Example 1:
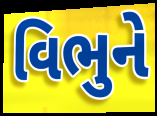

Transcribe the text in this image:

વિભુને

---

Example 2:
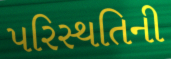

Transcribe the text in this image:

પરિસ્થતિની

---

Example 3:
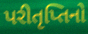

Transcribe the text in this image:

પરીતૃપ્તિનો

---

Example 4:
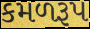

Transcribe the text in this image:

કમળરૂપ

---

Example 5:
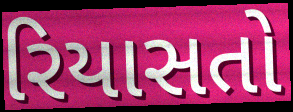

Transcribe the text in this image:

રિયાસતો